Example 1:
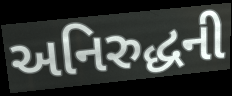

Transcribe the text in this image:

અનિરુદ્ધની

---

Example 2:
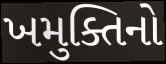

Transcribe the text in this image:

ખમુક્તિનો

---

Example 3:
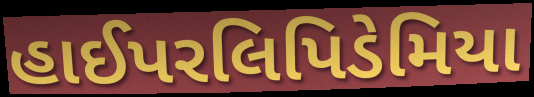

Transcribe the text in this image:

હાઈપરલિપિડેમિયા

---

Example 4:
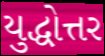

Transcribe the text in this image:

યુદ્ધોત્તર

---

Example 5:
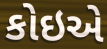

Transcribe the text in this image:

કોઇએ